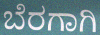
ಬೆರಗಾಗಿ